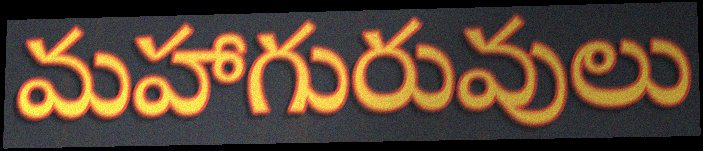
మహాగురువులు